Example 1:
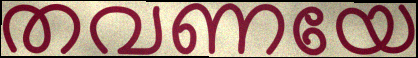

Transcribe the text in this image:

തവണയേ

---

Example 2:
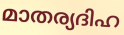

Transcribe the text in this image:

മാതര്യദിഹ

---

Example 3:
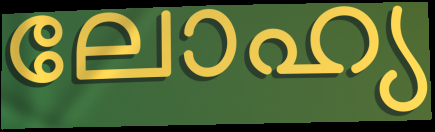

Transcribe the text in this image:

ലോഹ്യ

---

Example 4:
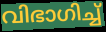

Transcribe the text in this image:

വിഭാഗിച്ച്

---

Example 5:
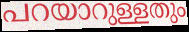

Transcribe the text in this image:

പറയാറുള്ളതും